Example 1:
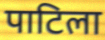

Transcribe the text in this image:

पाटिला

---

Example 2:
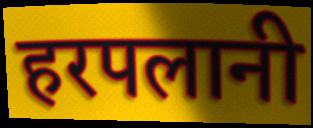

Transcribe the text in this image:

हरपलानी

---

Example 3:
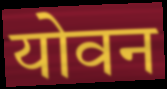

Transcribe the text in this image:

योवन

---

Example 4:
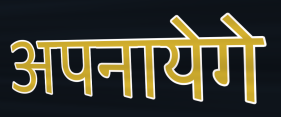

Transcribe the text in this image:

अपनायेगे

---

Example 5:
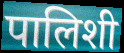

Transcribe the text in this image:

पालिशी